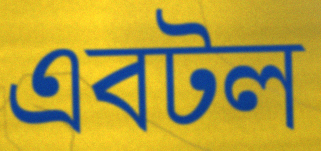
এবটল